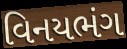
વિનયભંગ